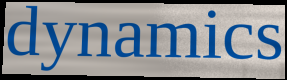
dynamics